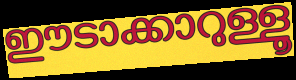
ഈടാക്കാറുള്ളൂ